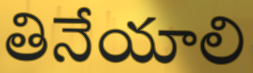
తినేయాలి